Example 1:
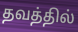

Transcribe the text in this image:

தவத்தில்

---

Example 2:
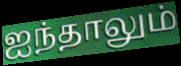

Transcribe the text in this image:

ஐந்தாலும்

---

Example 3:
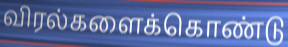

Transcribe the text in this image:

விரல்களைக்கொண்டு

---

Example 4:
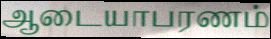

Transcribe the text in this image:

ஆடையாபரணம்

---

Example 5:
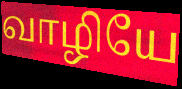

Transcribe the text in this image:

வாழியே